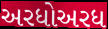
અરધોઅરધ